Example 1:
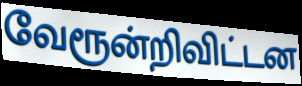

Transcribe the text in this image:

வேரூன்றிவிட்டன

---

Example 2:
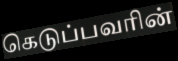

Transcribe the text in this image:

கெடுப்பவரின்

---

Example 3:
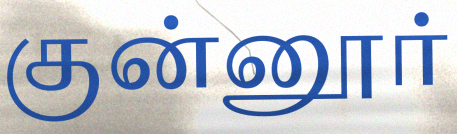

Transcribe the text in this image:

குன்னூர்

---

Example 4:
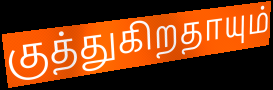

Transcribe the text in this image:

குத்துகிறதாயும்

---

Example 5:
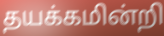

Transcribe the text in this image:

தயக்கமின்றி